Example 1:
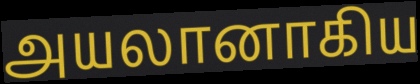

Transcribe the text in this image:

அயலானாகிய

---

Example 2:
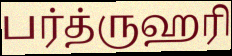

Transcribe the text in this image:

பர்த்ருஹரி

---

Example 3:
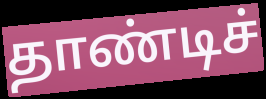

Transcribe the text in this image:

தாண்டிச்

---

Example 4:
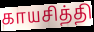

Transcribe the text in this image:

காயசித்தி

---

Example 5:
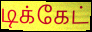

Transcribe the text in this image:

டிக்கேட்